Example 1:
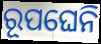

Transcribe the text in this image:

ରୂପଘେନି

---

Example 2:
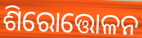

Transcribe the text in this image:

ଶିରୋତ୍ତୋଳନ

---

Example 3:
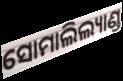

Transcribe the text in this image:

ସୋମାଲିଲ୍ୟାଣ୍ଡ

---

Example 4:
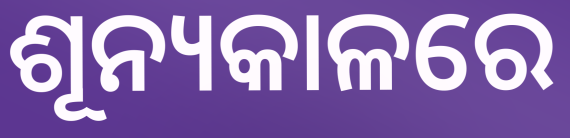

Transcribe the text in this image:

ଶୂନ୍ୟକାଳରେ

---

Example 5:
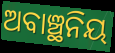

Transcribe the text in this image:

ଅବାଞ୍ଛନିୟ